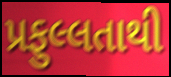
પ્રફુલ્લતાથી